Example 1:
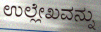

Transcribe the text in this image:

ಉಲ್ಲೇಖವನ್ನು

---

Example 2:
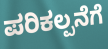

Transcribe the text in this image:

ಪರಿಕಲ್ಪನೆಗೆ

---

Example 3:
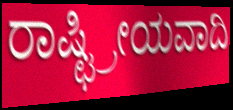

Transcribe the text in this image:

ರಾಷ್ಟ್ರೀಯವಾದಿ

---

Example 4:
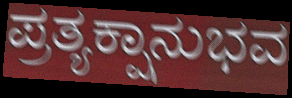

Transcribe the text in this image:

ಪ್ರತ್ಯಕ್ಷಾನುಭವ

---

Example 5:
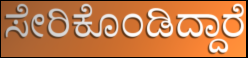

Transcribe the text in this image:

ಸೇರಿಕೊಂಡಿದ್ದಾರೆ